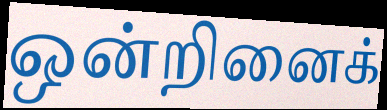
ஒன்றினைக்